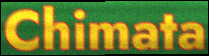
Chimata